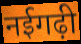
नईगढ़ी